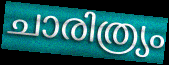
ചാരിത്യ്രം